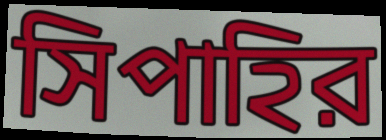
সিপাহির